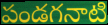
పండగనాటి